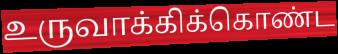
உருவாக்கிக்கொண்ட